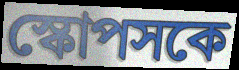
স্কোপসকে